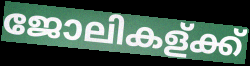
ജോലികള്ക്ക്